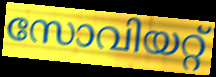
സോവിയറ്റ്